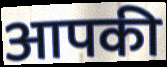
आपकी